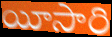
యీసారి